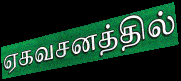
ஏகவசனத்தில்